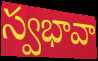
స్వభావా